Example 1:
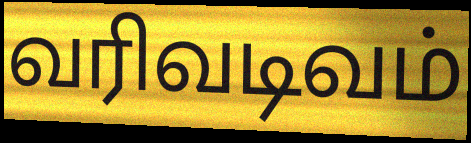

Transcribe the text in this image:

வரிவடிவம்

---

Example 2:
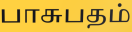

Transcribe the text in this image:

பாசுபதம்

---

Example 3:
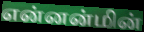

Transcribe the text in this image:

என்னன்மின்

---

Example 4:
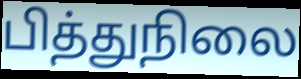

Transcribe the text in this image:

பித்துநிலை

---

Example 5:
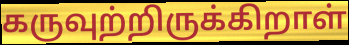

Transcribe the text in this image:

கருவுற்றிருக்கிறாள்